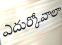
ఎదుర్కోవాలా